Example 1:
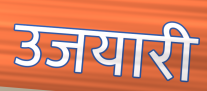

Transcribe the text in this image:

उजयारी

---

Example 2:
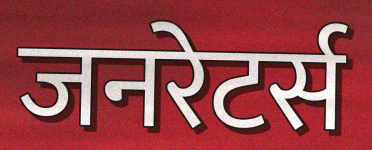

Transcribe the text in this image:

जनरेटर्स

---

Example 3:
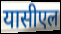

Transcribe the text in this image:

यासीएल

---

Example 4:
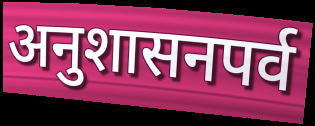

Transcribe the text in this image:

अनुशासनपर्व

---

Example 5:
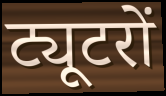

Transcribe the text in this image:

ट्यूटरों